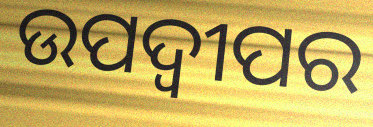
ଉପଦ୍ୱୀପର